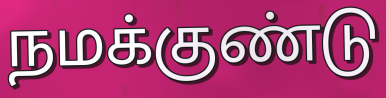
நமக்குண்டு